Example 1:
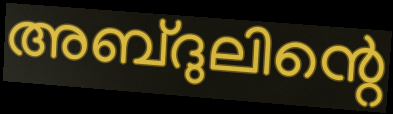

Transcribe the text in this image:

അബ്ദുലിന്റെ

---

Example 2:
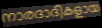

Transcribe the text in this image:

നാരദാദികളായ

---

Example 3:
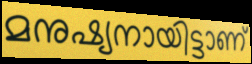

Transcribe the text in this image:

മനുഷ്യനായിട്ടാണ്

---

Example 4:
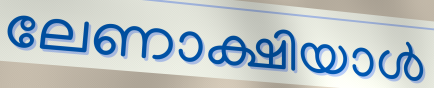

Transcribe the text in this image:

ലേണാക്ഷിയാൾ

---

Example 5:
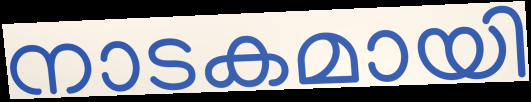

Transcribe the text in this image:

നാടകമായി